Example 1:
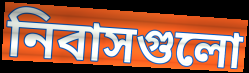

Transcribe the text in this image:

নিবাসগুলো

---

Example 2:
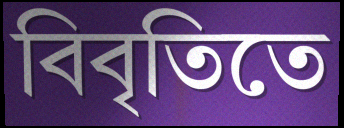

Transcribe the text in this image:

বিবৃতিতে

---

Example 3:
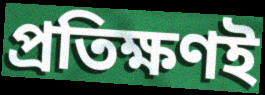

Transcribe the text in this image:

প্রতিক্ষণই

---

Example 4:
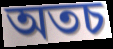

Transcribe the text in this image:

অতচ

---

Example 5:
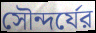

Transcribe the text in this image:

সৌন্দর্যের